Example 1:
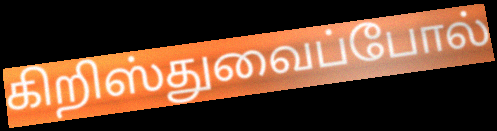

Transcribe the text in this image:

கிறிஸ்துவைப்போல்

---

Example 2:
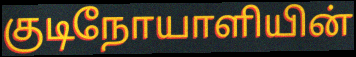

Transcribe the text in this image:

குடிநோயாளியின்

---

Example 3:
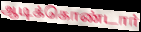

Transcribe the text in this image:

ஆடிக்கொண்டார்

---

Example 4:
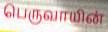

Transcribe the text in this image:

பெருவாயின்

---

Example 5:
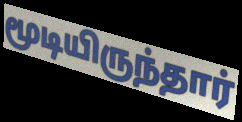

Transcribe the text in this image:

மூடியிருந்தார்